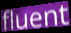
fluent